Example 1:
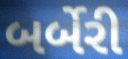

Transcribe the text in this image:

બર્બેરી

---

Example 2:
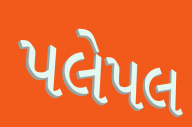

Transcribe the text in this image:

પલેપલ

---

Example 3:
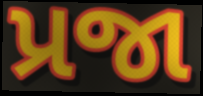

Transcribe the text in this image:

પ્રજા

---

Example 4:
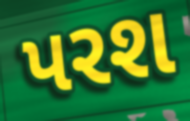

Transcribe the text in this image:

પરશ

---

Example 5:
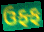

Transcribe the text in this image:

ઉફ્ફ